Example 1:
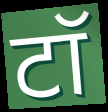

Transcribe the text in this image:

टॉ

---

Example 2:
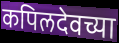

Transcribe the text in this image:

कपिलदेवच्या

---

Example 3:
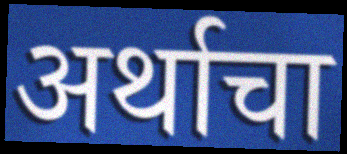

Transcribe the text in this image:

अर्थाचा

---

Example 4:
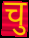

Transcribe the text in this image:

चु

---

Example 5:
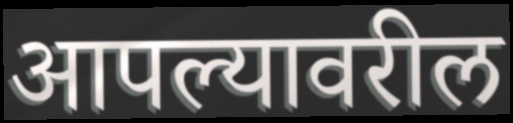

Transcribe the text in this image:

आपल्यावरील